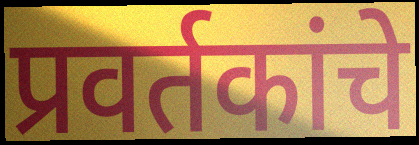
प्रवर्तकांचे